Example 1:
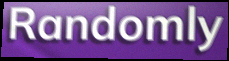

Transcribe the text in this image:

Randomly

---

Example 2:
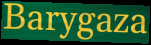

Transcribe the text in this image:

Barygaza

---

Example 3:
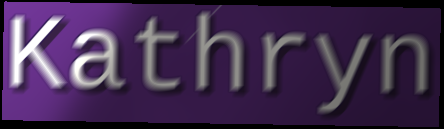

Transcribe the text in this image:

Kathryn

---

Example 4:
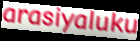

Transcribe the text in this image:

arasiyaluku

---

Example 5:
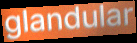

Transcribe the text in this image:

glandular